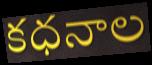
కధనాల